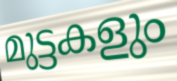
മുട്ടകളും